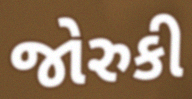
જોરુકી